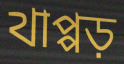
থাপ্পড়